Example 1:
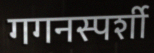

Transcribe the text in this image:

गगनस्पर्शी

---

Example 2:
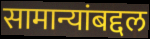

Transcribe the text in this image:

सामान्यांबद्दल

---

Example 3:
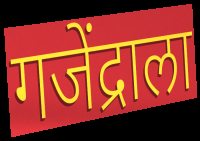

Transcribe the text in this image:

गजेंद्राला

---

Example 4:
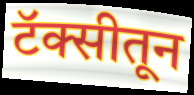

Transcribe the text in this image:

टॅक्‍सीतून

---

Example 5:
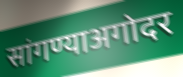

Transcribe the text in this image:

सांगण्याअगोदर